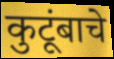
कुटूंबाचे